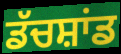
ਡੱਚਸ਼ਾਂਡ